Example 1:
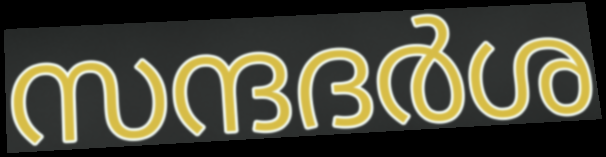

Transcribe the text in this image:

സന്ദദർശ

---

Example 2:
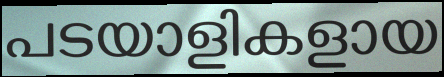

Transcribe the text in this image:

പടയാളികളായ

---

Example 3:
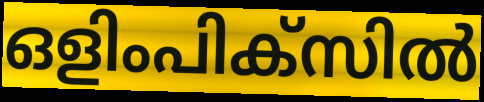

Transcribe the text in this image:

ഒളിംപിക്സിൽ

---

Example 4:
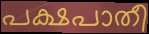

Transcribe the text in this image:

പക്ഷപാതീ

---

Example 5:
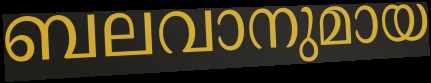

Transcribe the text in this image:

ബലവാനുമായ